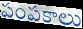
పంపకాలు